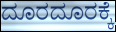
ದೂರದೂರಕ್ಕೆ